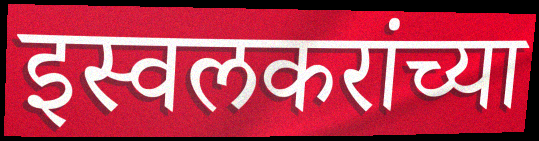
इस्वलकरांच्या